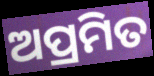
ଅପ୍ରମିତ